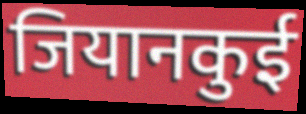
जियानकुई